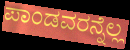
ಪಾಂಡವರನ್ನೆಲ್ಲ